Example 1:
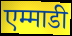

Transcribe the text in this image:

एम्माडी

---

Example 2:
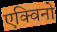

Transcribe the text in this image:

एक्विनो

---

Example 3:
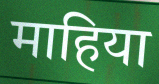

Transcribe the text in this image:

माहिया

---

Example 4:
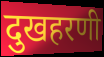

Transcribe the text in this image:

दुखहरणी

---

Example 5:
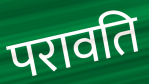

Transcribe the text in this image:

परावति